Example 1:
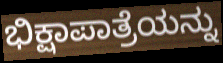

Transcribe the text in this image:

ಭಿಕ್ಷಾಪಾತ್ರೆಯನ್ನು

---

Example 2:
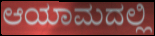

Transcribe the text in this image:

ಆಯಾಮದಲ್ಲಿ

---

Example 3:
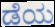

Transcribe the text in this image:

ಡೆಯ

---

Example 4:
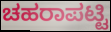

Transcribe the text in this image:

ಚಹರಾಪಟ್ಟಿ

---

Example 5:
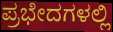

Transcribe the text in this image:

ಪ್ರಭೇದಗಳಲ್ಲಿ